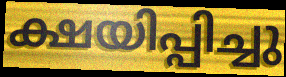
ക്ഷയിപ്പിച്ചു